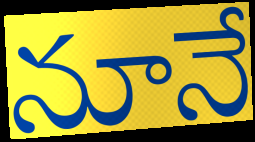
నూనే